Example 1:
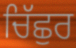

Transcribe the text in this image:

ਚਿੱਛੁਰ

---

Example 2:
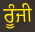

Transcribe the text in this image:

ਰੂੰਜੀ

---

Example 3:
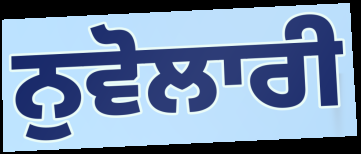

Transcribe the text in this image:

ਨੁਵੋਲਾਰੀ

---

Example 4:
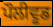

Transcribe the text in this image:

ਪੌਲੀਵੂਡ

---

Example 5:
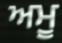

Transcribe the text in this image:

ਅਮੂ